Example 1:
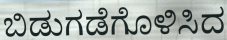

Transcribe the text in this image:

ಬಿಡುಗಡೆಗೊಳಿಸಿದ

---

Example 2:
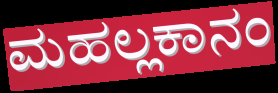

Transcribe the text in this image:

ಮಹಲ್ಲಕಾನಂ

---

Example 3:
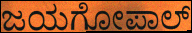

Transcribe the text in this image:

ಜಯಗೋಪಾಲ್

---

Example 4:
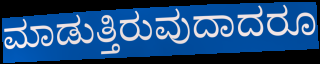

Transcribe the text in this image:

ಮಾಡುತ್ತಿರುವುದಾದರೂ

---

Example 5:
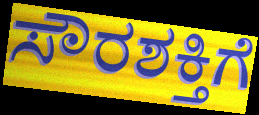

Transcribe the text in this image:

ಸೌರಶಕ್ತಿಗೆ